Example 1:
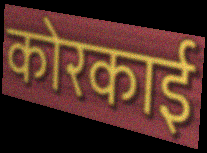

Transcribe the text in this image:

कोरकाई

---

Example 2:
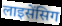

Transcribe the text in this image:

लाइसेंसिग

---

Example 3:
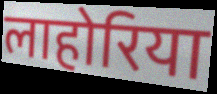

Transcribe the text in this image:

लाहोरिया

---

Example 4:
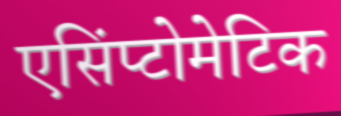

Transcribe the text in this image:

एसिंप्टोमेटिक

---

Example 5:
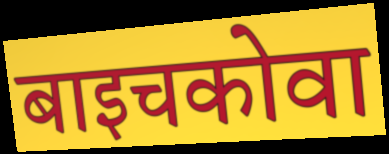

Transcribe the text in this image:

बाइचकोवा